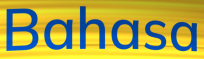
Bahasa